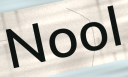
Nool